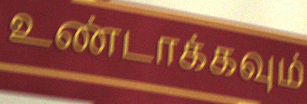
உண்டாக்கவும்